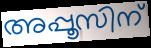
അപ്പൂസിന്